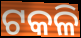
ଟକଳି